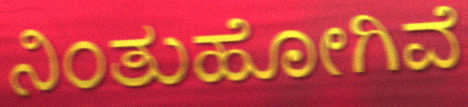
ನಿಂತುಹೋಗಿವೆ